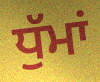
ਧੁੱਮਾਂ